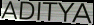
ADITYA